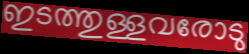
ഇടത്തുള്ളവരോടു